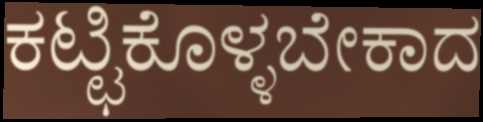
ಕಟ್ಟಿಕೊಳ್ಳಬೇಕಾದ